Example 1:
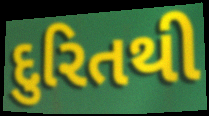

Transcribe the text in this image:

દુરિતથી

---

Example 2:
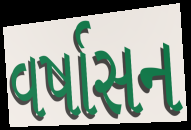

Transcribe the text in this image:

વર્ષાસન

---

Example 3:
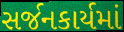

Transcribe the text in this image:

સર્જનકાર્યમાં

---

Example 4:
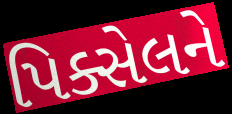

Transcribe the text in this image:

પિક્સેલને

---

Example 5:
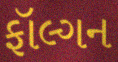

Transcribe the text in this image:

ફૉલ્ગન